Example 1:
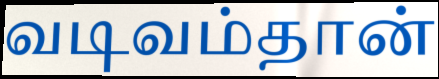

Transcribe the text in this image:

வடிவம்தான்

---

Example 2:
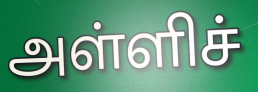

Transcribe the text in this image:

அள்ளிச்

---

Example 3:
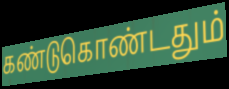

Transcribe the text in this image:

கண்டுகொண்டதும்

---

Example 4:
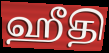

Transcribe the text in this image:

ஹீதி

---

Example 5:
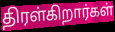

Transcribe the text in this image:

திரள்கிறார்கள்